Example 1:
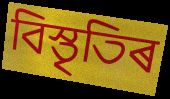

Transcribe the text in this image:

বিস্তৃতিৰ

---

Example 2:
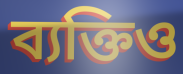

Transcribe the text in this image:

ব্যক্তিও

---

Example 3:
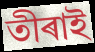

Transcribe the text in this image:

তীৰাই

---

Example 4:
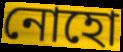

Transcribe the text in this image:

নোহো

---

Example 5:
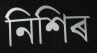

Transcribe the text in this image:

নিশিৰ